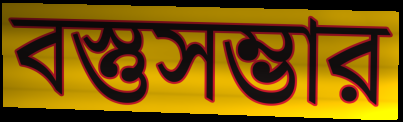
বস্তুসম্ভার